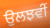
ਉਲਝਵੀਂ